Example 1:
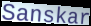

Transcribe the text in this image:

Sanskar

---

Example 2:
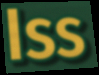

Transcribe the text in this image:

Iss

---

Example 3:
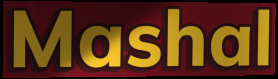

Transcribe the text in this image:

Mashal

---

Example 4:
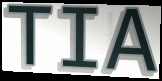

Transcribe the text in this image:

TIA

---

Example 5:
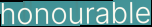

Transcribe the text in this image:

honourable